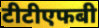
टीटीएफबी